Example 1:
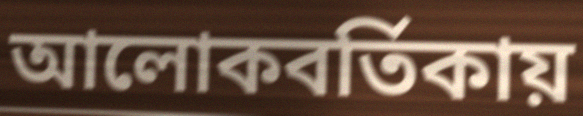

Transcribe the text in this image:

আলোকবর্তিকায়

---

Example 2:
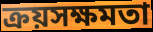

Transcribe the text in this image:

ক্রয়সক্ষমতা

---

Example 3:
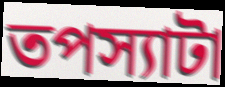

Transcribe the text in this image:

তপস্যাটা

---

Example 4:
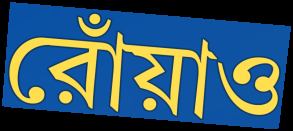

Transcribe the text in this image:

রোঁয়াও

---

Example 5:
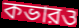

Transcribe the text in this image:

কভারও